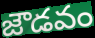
జౌడవం